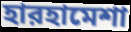
হারহামেশা